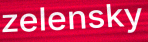
zelensky